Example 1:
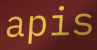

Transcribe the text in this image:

apis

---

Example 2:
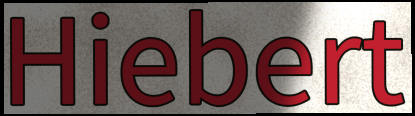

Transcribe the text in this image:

Hiebert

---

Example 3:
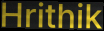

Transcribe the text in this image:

Hrithik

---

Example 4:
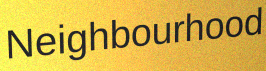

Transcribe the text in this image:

Neighbourhood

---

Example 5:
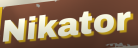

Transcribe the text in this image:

Nikator